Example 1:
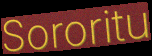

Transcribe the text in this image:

Sororitu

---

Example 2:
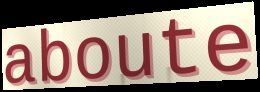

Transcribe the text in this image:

aboute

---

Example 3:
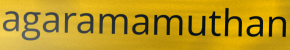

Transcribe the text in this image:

agaramamuthan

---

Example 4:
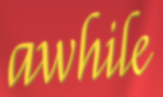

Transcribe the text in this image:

awhile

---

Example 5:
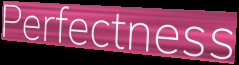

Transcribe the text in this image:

Perfectness